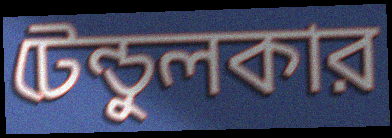
টেন্ডুলকার